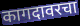
कागदावरचा